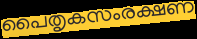
പൈതൃകസംരക്ഷണ